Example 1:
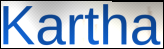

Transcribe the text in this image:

Kartha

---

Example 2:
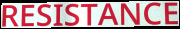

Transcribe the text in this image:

RESISTANCE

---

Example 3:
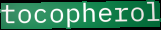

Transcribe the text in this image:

tocopherol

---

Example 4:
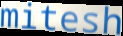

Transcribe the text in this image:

mitesh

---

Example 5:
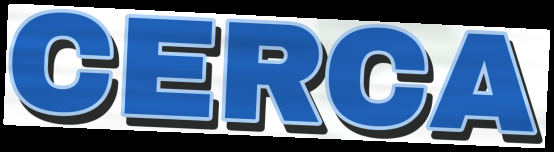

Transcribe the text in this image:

CERCA